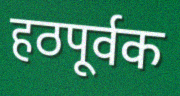
हठपूर्वक